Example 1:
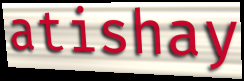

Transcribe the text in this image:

atishay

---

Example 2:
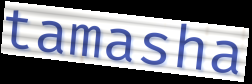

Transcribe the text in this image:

tamasha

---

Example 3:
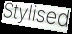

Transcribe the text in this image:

Stylised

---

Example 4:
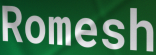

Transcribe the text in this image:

Romesh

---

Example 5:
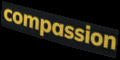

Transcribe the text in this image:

compassion